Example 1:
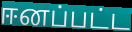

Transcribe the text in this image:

ஈனப்பட்ட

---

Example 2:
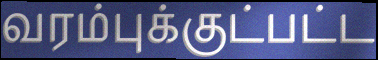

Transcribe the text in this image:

வரம்புக்குட்பட்ட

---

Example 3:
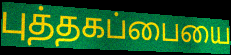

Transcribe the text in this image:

புத்தகப்பையை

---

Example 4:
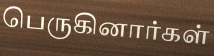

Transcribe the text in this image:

பெருகினார்கள்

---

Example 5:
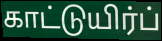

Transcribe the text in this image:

காட்டுயிர்ப்